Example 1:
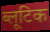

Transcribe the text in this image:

ब्लूटिक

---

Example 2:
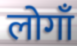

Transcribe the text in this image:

लोगाँ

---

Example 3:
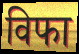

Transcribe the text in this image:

विफा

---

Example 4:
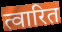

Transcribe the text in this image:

त्वारित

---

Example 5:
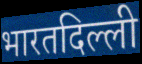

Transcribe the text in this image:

भारतदिल्ली